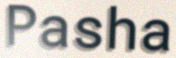
Pasha